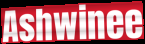
Ashwinee